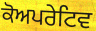
ਕੋਅਪਰੇਟਿਵ